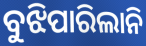
ବୁଝିପାରିଲାନି